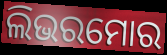
ଲିଭରମୋର